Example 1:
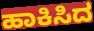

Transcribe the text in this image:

ಹಾಕಿಸಿದ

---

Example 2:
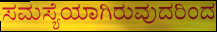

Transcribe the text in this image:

ಸಮಸ್ಯೆಯಾಗಿರುವುದರಿಂದ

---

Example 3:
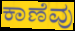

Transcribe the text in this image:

ಕಾಣೆವು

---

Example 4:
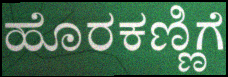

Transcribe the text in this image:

ಹೊರಕಣ್ಣಿಗೆ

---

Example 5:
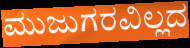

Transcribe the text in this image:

ಮುಜುಗರವಿಲ್ಲದ